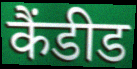
कैंडीड